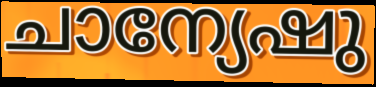
ചാന്യേഷു